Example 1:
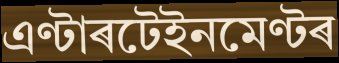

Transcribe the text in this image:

এণ্টাৰটেইনমেণ্টৰ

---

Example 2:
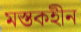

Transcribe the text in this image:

মস্তকহীন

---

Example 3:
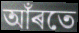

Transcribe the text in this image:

আঁৰতে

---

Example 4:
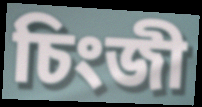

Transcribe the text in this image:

চিংজী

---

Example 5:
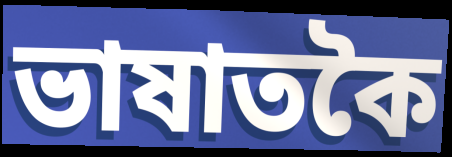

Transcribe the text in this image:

ভাষাতকৈ